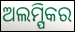
ଅଲମ୍ପିକର